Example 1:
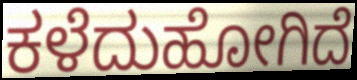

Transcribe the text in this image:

ಕಳೆದುಹೋಗಿದೆ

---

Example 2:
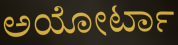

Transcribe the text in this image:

ಅಯೋರ್ಟಾ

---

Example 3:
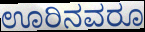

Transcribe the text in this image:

ಊರಿನವರೂ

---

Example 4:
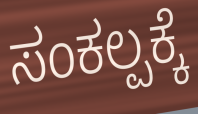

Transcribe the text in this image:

ಸಂಕಲ್ಪಕ್ಕೆ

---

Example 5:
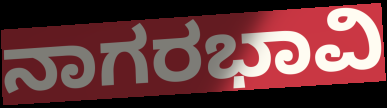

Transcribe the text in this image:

ನಾಗರಭಾವಿ